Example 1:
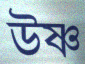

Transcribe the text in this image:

উষ্ণ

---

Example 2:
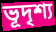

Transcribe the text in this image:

ভূদৃশ্য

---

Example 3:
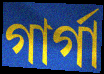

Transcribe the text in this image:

গার্গা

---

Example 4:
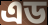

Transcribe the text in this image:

এড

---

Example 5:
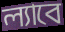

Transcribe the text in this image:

ল্যাবে